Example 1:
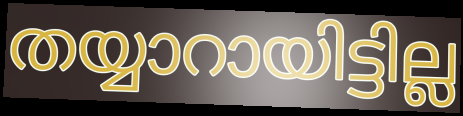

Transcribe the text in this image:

തയ്യാറായിട്ടില്ല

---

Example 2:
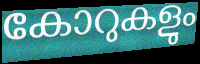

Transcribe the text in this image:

കോറുകളും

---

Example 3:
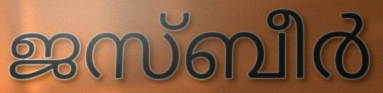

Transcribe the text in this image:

ജസ്ബീർ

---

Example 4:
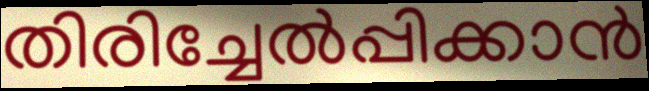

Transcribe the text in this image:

തിരിച്ചേൽപ്പിക്കാൻ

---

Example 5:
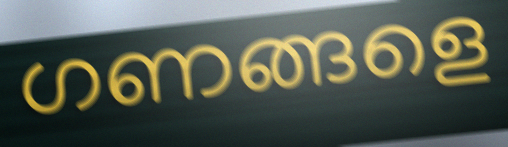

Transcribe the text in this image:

ഗണങ്ങളെ